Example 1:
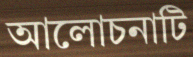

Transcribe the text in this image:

আলোচনাটি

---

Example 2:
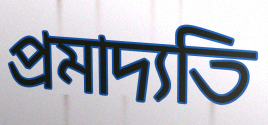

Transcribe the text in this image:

প্রমাদ্যতি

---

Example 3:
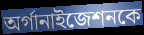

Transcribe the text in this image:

অর্গানাইজেশনকে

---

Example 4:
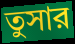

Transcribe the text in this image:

তুসার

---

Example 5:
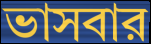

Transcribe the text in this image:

ভাসবার